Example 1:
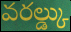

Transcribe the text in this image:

వరల్డ్కు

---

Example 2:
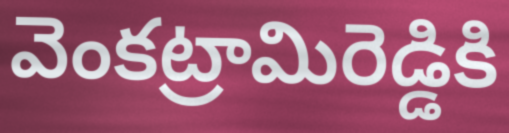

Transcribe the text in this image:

వెంకట్రామిరెడ్డికి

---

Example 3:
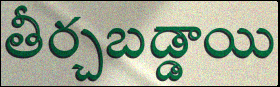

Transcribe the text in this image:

తీర్చబడ్డాయి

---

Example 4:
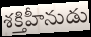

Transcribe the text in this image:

శక్తిహీనుడు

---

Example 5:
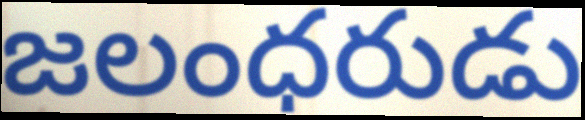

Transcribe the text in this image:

జలంధరుడు